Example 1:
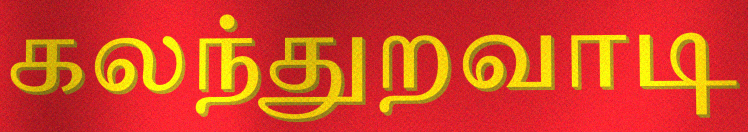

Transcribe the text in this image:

கலந்துறவாடி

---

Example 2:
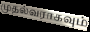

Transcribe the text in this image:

முதல்வராகவும்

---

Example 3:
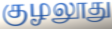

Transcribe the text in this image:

குழலூது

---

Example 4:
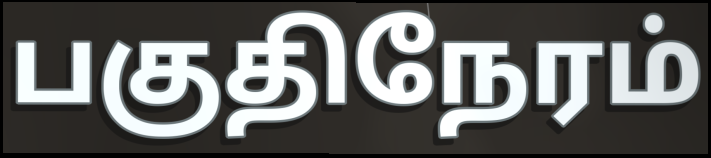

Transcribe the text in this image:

பகுதிநேரம்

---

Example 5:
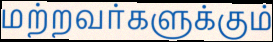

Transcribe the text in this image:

மற்றவர்களுக்கும்